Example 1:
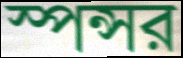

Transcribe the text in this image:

স্পন্সর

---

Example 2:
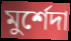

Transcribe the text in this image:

মুর্শেদা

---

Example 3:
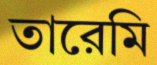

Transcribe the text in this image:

তারেমি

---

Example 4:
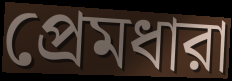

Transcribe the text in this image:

প্রেমধারা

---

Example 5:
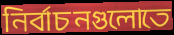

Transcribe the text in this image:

নির্বাচনগুলোতে